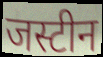
जस्टीन